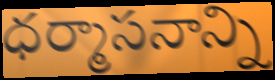
ధర్మాసనాన్ని